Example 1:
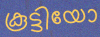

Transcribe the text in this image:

കൂട്ടിയോ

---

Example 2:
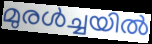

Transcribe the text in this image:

മുരൾച്ചയിൽ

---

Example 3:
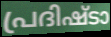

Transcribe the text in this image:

പ്രദിഷ്ടാ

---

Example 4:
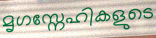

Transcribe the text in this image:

മൃഗസ്നേഹികളുടെ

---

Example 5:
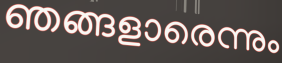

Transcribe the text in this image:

ഞങ്ങളാരെന്നും